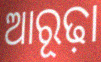
ଆରୂଢ଼ା